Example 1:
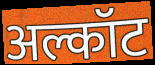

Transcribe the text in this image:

अल्कॉट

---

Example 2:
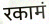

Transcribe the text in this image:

रकामं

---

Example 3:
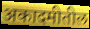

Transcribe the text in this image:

अकादमीतील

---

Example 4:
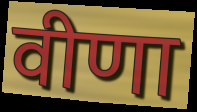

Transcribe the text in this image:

वीणा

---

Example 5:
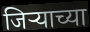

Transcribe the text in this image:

जिऱ्याच्या